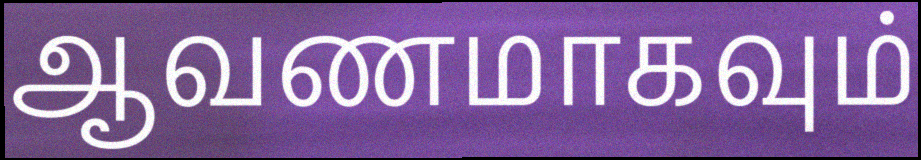
ஆவணமாகவும்